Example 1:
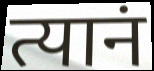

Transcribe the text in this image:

त्यानं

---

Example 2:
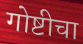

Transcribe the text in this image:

गोष्टीचा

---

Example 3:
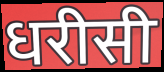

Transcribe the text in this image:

धरीसी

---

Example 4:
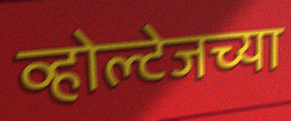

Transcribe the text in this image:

व्होल्टेजच्या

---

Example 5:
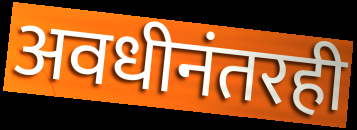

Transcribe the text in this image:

अवधीनंतरही